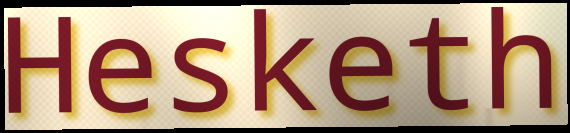
Hesketh